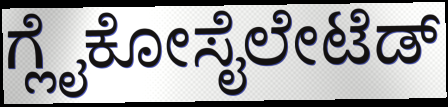
ಗ್ಲೈಕೋಸೈಲೇಟೆಡ್